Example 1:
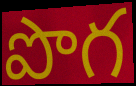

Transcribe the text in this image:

పొగ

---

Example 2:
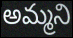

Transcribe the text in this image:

అమ్మని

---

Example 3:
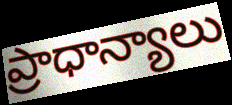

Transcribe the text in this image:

ప్రాధాన్యాలు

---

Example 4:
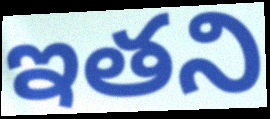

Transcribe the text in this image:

ఇతని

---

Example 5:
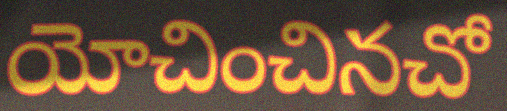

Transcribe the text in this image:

యోచించినచో